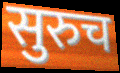
सुरुच